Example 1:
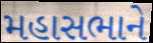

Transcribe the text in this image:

મહાસભાને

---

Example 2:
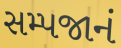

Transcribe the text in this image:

સમ્પજાનં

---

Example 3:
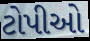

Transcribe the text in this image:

ટોપીઓ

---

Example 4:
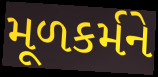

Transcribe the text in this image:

મૂળકર્મને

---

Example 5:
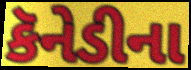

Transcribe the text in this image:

કૅનેડીના